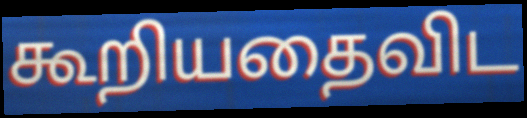
கூறியதைவிட